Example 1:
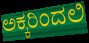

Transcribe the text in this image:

ಅಕ್ಕರಿಂದಲಿ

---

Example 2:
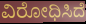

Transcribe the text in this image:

ವಿರೋಧಿಸಿದೆ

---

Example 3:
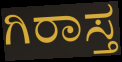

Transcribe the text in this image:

ಗಿರಾಸ್ತ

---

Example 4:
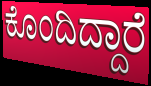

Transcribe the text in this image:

ಕೊಂದಿದ್ದಾರೆ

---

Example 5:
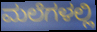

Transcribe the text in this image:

ಮಲೆಗಳಲ್ಲಿ